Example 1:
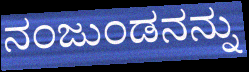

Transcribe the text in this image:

ನಂಜುಂಡನನ್ನು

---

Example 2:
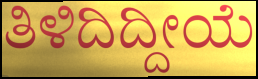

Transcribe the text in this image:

ತಿಳಿದಿದ್ದೀಯೆ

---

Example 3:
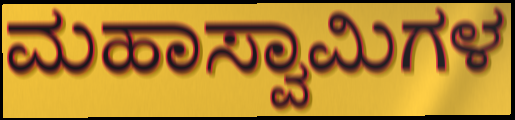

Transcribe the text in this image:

ಮಹಾಸ್ವಾಮಿಗಳ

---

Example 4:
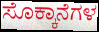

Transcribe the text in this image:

ಸೊಕ್ಕಾನೆಗಳ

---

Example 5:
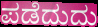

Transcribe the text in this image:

ಪಡೆದುದು